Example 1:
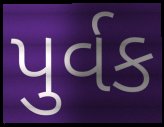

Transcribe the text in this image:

પુર્વક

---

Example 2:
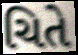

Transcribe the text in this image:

ચિતે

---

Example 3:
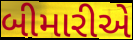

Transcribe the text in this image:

બીમારીએ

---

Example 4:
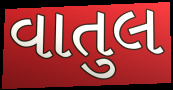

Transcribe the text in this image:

વાતુલ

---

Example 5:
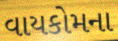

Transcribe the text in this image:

વાયકોમના